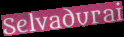
Selvadurai